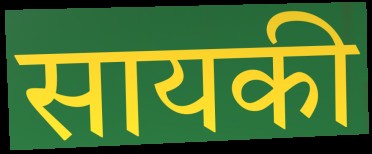
सायकी